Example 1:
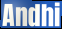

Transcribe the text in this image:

Andhi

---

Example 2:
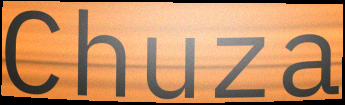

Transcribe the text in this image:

Chuza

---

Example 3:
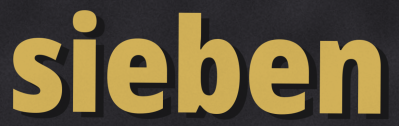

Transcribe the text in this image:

sieben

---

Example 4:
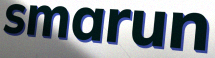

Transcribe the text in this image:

smarun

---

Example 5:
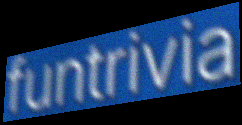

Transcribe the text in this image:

funtrivia